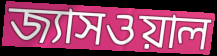
জ্যাসওয়াল